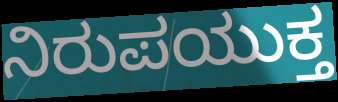
ನಿರುಪಯುಕ್ತ